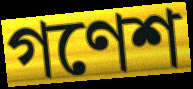
গণেশ